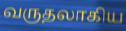
வருதலாகிய